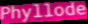
Phyllode